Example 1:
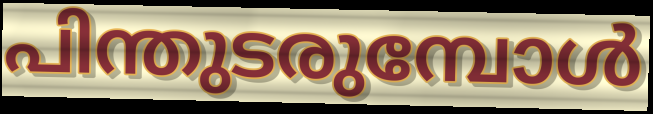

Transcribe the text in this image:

പിന്തുടരുമ്പോൾ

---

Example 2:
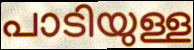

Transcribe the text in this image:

പാടിയുള്ള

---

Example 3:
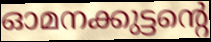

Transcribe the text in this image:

ഓമനക്കുട്ടന്റെ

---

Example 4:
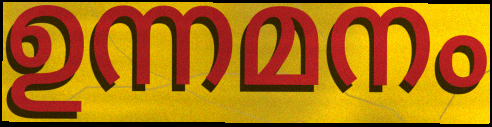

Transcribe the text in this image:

ഉന്നമനം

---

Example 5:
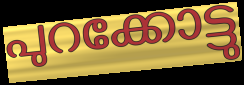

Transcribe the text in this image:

പുറക്കോട്ടു